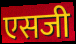
एसजी